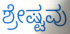
ಶ್ರೇಷ್ಟವು